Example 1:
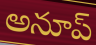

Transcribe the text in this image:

అనూప్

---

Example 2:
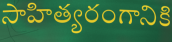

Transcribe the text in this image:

సాహిత్యరంగానికి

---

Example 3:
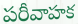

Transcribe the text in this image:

పరీవాహక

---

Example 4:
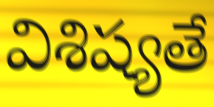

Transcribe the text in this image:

విశిష్యతే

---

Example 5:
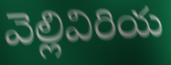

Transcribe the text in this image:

వెల్లివిరియ